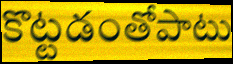
కొట్టడంతోపాటు